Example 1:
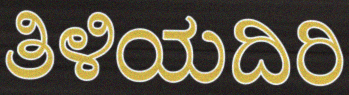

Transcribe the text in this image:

ತಿಳಿಯದಿರಿ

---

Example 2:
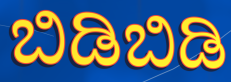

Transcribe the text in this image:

ಬಿಡಿಬಿಡಿ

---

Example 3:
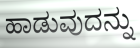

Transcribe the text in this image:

ಹಾಡುವುದನ್ನು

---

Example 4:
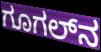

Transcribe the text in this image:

ಗೂಗಲ್‌ನ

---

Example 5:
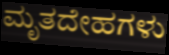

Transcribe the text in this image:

ಮೃತದೇಹಗಳು